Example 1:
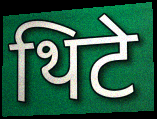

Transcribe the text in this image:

थिटे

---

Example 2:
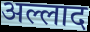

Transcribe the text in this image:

अल्लाद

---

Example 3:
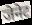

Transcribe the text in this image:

जेनेट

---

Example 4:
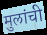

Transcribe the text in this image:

मुलांची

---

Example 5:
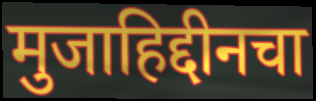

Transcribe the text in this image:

मुजाहिद्दीनचा